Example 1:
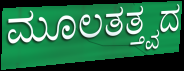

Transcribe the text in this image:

ಮೂಲತತ್ತ್ವದ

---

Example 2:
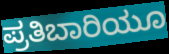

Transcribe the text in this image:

ಪ್ರತಿಬಾರಿಯೂ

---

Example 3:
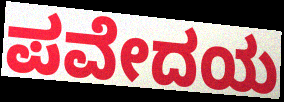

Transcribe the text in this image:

ಪವೇದಯ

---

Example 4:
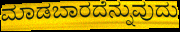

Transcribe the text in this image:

ಮಾಡಬಾರದೆನ್ನುವುದು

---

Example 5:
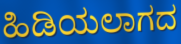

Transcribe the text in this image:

ಹಿಡಿಯಲಾಗದ